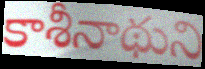
కాశీనాథుని